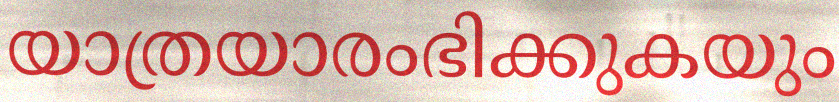
യാത്രയാരംഭിക്കുകയും